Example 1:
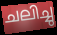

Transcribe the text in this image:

ചലിച്ചു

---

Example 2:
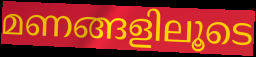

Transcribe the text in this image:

മണങ്ങളിലൂടെ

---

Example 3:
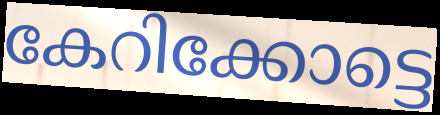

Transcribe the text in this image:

കേറിക്കോട്ടെ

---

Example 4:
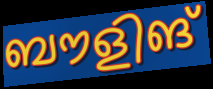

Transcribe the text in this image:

ബൗളിങ്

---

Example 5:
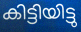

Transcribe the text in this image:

കിട്ടിയിട്ടു